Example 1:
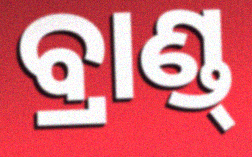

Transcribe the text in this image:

ବ୍ରାଣ୍ଡ୍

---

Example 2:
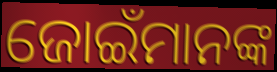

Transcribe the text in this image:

ଜୋଇଁମାନଙ୍କ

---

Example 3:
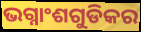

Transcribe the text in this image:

ଭଗ୍ନାଂଶଗୁଡିକର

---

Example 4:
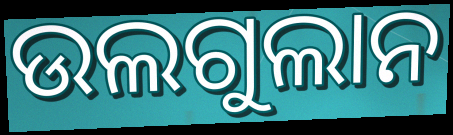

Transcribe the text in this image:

ଉଲଗୁଲାନ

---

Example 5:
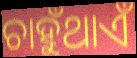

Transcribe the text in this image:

ଚାହୁଁଥାଏଁ